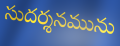
సుదర్శనమును